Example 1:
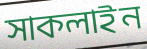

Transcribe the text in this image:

সাকলাইন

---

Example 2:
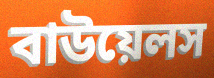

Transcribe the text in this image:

বাউয়েলস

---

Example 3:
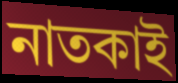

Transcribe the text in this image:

নাতকাই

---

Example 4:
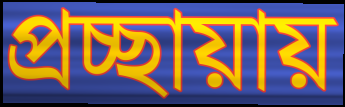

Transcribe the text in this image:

প্রচ্ছায়ায়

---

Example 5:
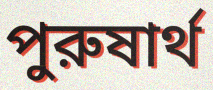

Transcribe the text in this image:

পুরুষার্থ